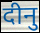
दीनु